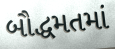
બૌદ્ધમતમાં